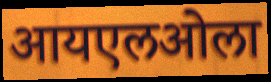
आयएलओला